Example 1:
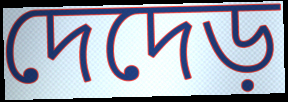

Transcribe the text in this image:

দেদেড়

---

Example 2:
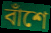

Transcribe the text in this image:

বাঁশে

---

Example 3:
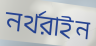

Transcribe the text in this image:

নর্থরাইন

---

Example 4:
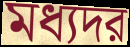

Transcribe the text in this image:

মধ্যদর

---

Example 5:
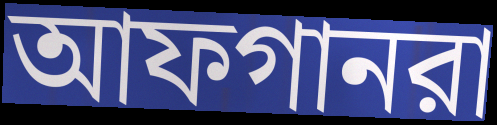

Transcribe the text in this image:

আফগানরা